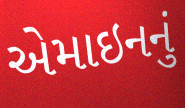
એમાઇનનું